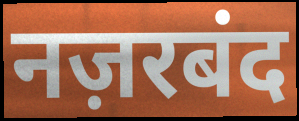
नज़रबंद